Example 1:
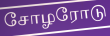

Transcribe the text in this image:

சோழரோடு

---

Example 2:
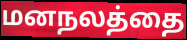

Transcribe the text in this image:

மனநலத்தை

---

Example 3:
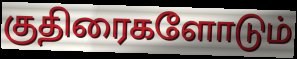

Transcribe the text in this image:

குதிரைகளோடும்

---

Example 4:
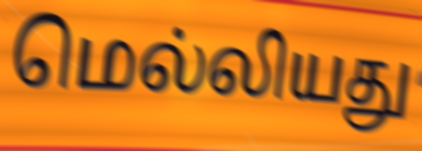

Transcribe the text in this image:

மெல்லியது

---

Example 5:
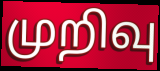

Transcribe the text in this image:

முறிவு